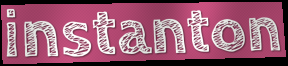
instanton